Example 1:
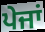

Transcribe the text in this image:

ਪੇਜਾਂ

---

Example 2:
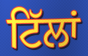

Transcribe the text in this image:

ਟਿੱਲਾਂ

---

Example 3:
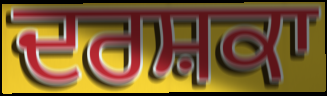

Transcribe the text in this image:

ਦਰਸ਼ਕਾ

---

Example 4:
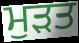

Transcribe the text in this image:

ਮੁੜਤ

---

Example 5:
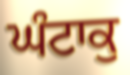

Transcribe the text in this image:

ਘੰਟਾਕੁ